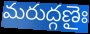
మరుద్గణైః